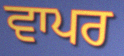
ਵਾਪਰ